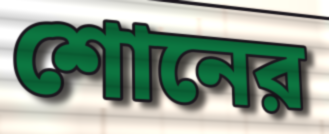
শোনের